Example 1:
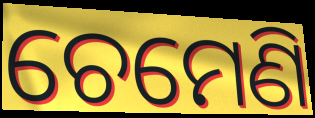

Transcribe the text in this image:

ଚେମେଣି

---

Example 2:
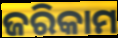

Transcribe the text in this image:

ଜରିକାମ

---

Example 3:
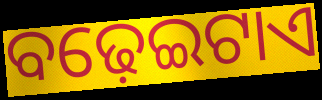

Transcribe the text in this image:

ବଢ଼େଇଟାଏ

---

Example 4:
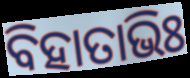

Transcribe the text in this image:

ବିହାତାଭିଃ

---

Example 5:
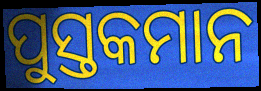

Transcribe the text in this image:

ପୁସ୍ତକମାନ